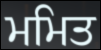
ਮਮਿਤ